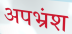
अपभ्रंश